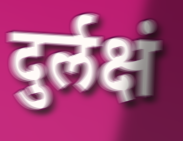
दुर्लक्षं